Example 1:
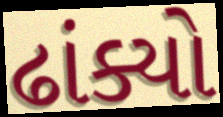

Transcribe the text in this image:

ઢાંક્યો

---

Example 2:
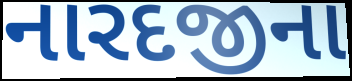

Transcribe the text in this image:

નારદજીના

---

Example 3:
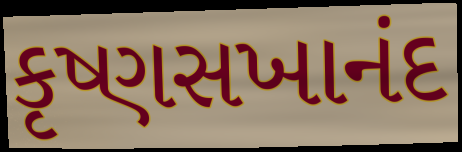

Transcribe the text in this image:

કૃષ્ણસખાનંદ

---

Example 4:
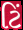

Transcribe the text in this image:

ટિં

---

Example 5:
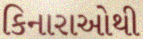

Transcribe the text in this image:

કિનારાઓથી